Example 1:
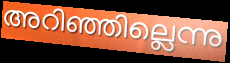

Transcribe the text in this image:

അറിഞ്ഞില്ലെന്നു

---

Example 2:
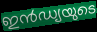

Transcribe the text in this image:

ഇൻഡ്യയുടെ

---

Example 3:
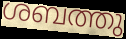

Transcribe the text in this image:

ശബത്തു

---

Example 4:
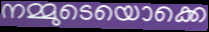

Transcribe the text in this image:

നമ്മുടെയൊക്കെ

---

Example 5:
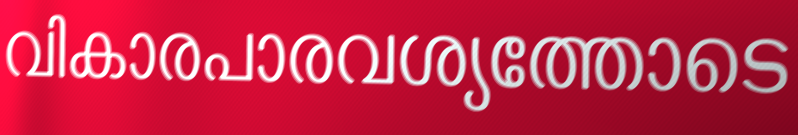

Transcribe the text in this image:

വികാരപാരവശ്യത്തോടെ